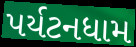
પર્યટનધામ